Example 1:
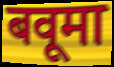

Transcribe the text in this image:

बवूमा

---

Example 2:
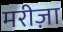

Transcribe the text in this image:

मरीज़ा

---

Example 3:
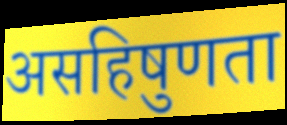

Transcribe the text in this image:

असहिषुणता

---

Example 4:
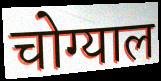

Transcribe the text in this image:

चोग्याल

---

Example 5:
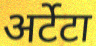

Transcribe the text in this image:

अर्टेटा